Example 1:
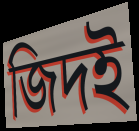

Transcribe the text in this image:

জিদই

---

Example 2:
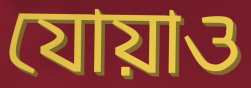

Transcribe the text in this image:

যোয়াও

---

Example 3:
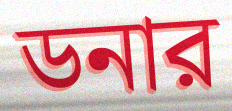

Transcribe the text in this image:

ডনার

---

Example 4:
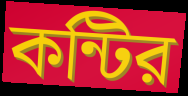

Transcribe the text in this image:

কন্টির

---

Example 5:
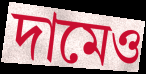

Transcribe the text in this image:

দামেও